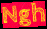
Ngh